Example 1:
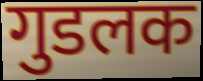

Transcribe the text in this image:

गुडलक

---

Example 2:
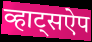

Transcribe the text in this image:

व्हाट्सऐप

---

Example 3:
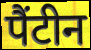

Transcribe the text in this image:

पैंटीन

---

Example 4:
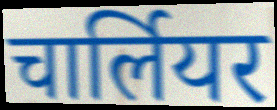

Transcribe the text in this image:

चार्लियर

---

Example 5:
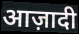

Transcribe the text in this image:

आज़ादी